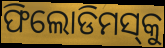
ଫିଲୋଡିମସ୍‌କୁ